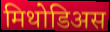
मिथोडिअस